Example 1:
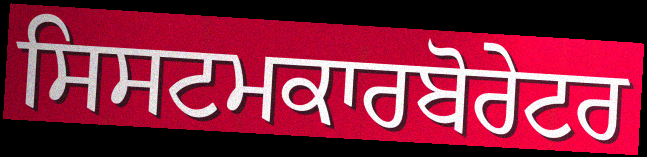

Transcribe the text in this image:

ਸਿਸਟਮਕਾਰਬੋਰੇਟਰ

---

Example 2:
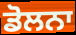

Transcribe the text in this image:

ਡੋਲਨਾ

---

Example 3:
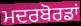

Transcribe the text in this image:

ਮਦਰਬੋਰਡਾਂ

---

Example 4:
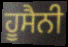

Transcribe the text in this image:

ਹੂਸੈਨੀ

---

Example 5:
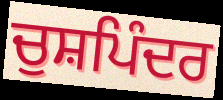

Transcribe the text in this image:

ਚੁਸ਼ਪਿੰਦਰ